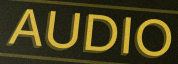
AUDIO